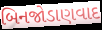
બિનજોડાણવાદ